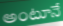
అంటూనే